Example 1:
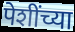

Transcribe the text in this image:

पेशींच्या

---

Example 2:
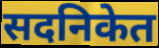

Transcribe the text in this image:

सदनिकेत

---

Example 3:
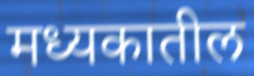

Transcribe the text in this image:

मध्यकातील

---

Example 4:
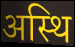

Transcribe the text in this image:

अस्थि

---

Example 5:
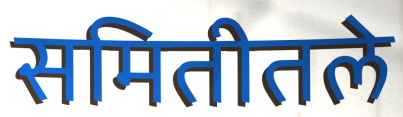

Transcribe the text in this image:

समितीतले